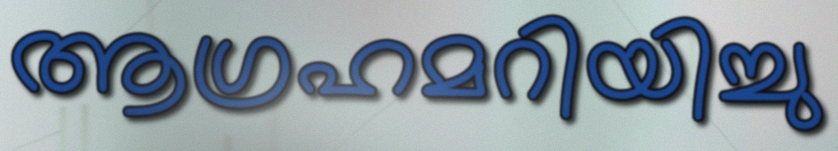
ആഗ്രഹമറിയിച്ചു